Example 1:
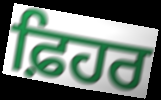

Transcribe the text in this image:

ਫ਼ਿਹਰ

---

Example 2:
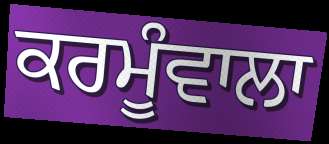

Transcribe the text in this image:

ਕਰਮੂੰਵਾਲਾ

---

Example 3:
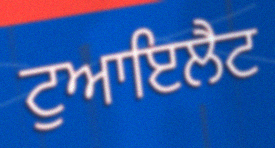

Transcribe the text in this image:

ਟੁਆਇਲੈਟ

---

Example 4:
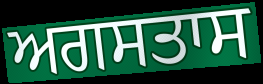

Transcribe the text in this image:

ਅਗਸਤਾਸ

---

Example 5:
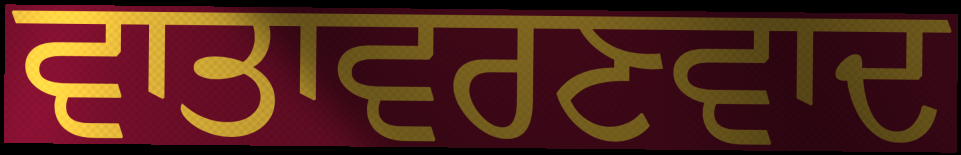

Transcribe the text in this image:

ਵਾਤਾਵਰਣਵਾਦ